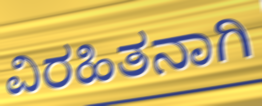
ವಿರಹಿತನಾಗಿ